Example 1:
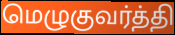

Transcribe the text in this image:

மெழுகுவர்த்தி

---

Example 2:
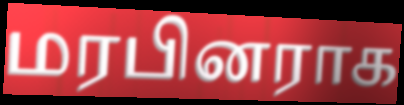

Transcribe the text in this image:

மரபினராக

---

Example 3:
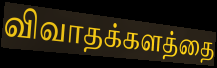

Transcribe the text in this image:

விவாதக்களத்தை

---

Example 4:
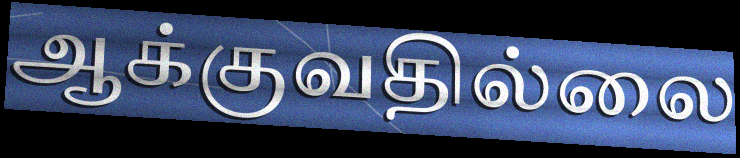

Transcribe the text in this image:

ஆக்குவதில்லை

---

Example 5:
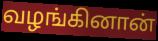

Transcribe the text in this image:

வழங்கினான்